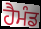
ਹੈਮੰਡ